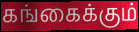
கங்கைக்கும்